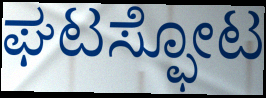
ಘಟಸ್ಫೋಟ